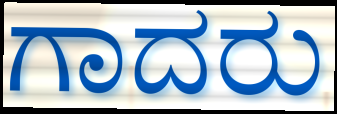
ಗಾದರು